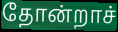
தோன்றாச்